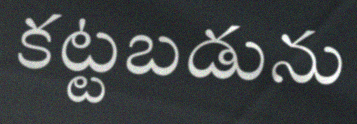
కట్టబడును